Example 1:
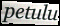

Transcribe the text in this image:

petulu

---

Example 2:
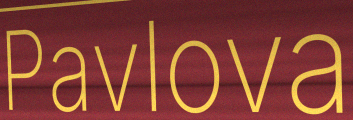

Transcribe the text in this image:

Pavlova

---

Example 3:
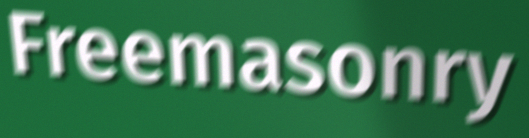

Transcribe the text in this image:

Freemasonry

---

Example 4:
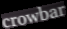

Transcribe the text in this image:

crowbar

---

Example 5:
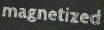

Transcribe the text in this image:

magnetized